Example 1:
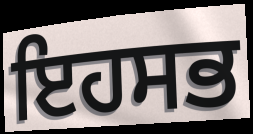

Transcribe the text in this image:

ਇਹਸਭ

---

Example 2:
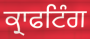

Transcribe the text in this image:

ਕ੍ਰਾਫਟਿੰਗ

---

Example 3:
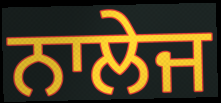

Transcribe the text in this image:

ਨਾਲੇਜ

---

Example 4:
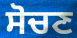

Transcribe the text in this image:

ਸੋਚਣ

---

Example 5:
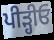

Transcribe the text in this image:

ਪੀੜ੍ਹੀਓ